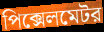
পিক্সেলমেটর